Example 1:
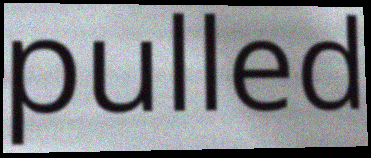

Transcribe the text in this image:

pulled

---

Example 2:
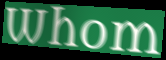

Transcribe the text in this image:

Whom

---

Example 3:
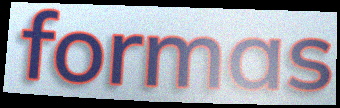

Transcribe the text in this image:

formas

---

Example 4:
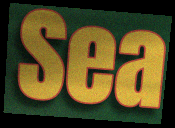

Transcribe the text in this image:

Sea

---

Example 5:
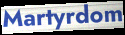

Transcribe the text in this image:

Martyrdom